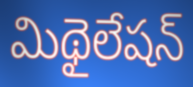
మిథైలేషన్